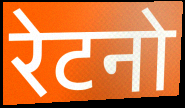
रेटनो